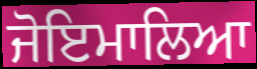
ਜੋਇਮਾਲਿਆ